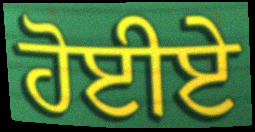
ਹੋਈਏ